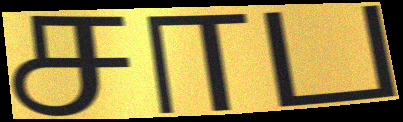
சாப